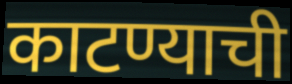
काटण्याची